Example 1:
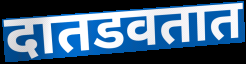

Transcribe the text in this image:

दातडवतात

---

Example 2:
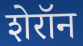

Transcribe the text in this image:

शेरॉन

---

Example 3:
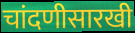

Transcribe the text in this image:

चांदणीसारखी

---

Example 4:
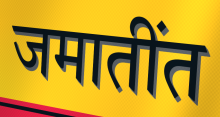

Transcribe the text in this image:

जमातींत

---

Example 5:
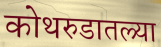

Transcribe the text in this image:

कोथरुडातल्या